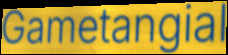
Gametangial